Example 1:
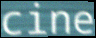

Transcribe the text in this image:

cine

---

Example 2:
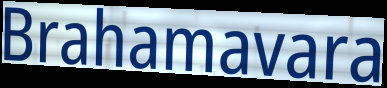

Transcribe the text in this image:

Brahamavara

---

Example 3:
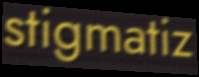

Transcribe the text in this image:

stigmatiz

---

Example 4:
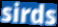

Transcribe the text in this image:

sirds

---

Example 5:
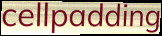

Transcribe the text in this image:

cellpadding